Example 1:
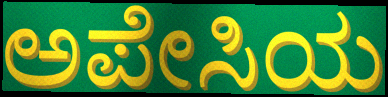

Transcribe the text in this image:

ಅಪೇಸಿಯ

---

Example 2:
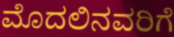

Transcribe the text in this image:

ಮೊದಲಿನವರಿಗೆ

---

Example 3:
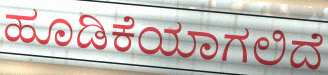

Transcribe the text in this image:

ಹೂಡಿಕೆಯಾಗಲಿದೆ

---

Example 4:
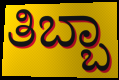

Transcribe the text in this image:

ತಿಬ್ಬಾ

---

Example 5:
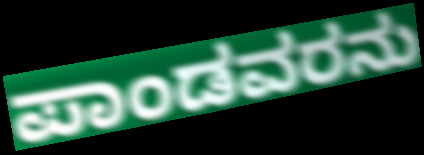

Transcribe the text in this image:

ಪಾಂಡವರನು